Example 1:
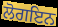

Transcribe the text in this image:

ਲੋਗਇਨ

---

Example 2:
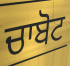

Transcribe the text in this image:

ਚਾਬੋਟ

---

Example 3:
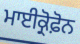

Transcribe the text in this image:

ਮਾਈਕ੍ਰੋਫ਼ੋਨ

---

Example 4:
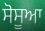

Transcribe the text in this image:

ਸੋਸੂਆ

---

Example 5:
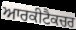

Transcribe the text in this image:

ਆਰਕੀਟੈਕਚਰ